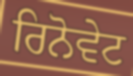
ਰਿਨੋਵੇਟ